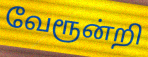
வேரூன்றி